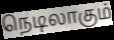
நெடிலாகும்